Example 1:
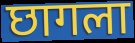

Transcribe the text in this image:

छागला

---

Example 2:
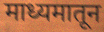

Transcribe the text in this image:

माध्यमातून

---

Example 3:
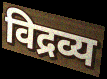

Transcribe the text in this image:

विद्रव्य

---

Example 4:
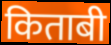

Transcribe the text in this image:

किताबी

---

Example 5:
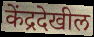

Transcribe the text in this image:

केंद्रदेखील